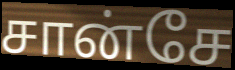
சான்சே